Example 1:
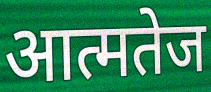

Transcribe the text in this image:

आत्मतेज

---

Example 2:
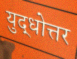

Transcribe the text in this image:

युद्धोत्तर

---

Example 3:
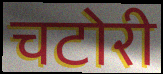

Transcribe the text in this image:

चटोरी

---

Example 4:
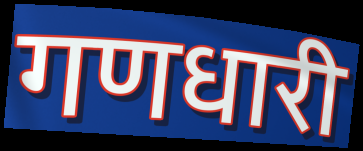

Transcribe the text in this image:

गणधारी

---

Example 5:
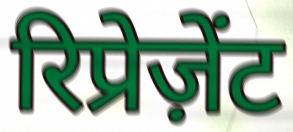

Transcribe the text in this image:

रिप्रेज़ेंट